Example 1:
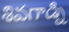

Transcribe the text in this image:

శివగాడ్ని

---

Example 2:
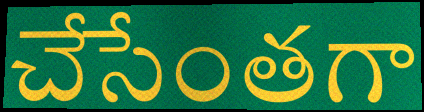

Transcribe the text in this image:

చేసేంతగా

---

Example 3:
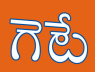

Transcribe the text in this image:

గెటే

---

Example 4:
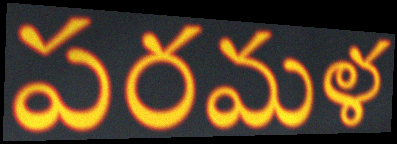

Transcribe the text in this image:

పరమళ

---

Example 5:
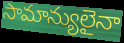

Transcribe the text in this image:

సామాన్యులైనా